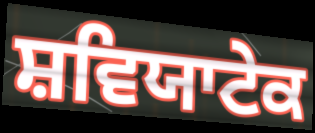
ਸ਼ਵਿਯਾਟੇਕ